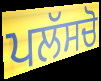
ਪਲੱਸਚੋ